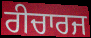
ਰੀਚਾਰਜ